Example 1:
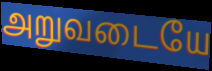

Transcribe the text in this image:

அறுவடையே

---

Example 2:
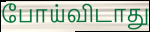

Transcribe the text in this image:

போய்விடாது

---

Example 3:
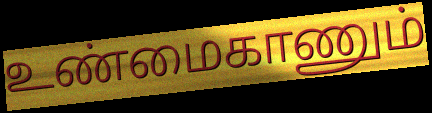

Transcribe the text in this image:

உண்மைகாணும்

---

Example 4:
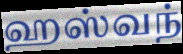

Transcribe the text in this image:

ஹஸ்வந்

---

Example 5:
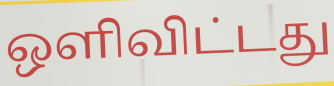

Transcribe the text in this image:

ஒளிவிட்டது